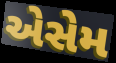
એસેમ